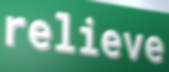
relieve